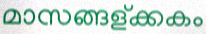
മാസങ്ങള്ക്കകം